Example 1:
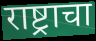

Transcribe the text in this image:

राष्ट्राचा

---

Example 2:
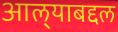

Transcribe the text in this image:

आल्याबद्दल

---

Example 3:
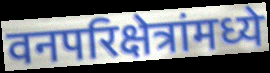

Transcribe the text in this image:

वनपरिक्षेत्रांमध्ये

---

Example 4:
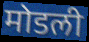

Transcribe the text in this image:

मोडली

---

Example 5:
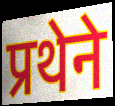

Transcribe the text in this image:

प्रथेने